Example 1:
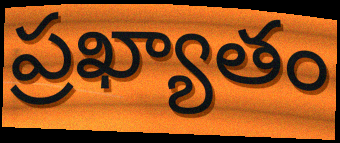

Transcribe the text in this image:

ప్రఖ్యాతం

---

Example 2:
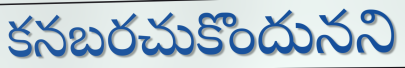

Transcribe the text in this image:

కనబరచుకొందునని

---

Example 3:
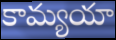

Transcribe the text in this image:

కామ్యయా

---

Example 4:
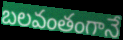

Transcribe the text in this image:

బలవంతంగానే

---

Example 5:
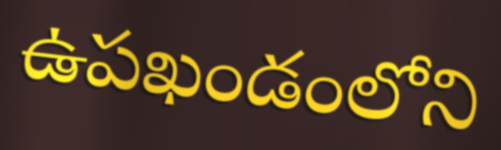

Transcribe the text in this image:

ఉపఖండంలోని